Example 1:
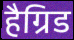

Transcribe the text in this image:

हैग्रिड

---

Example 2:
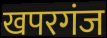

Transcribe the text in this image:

खपरगंज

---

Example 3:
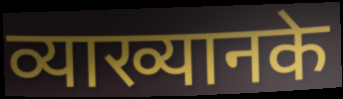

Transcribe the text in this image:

व्याख्यानके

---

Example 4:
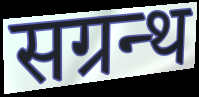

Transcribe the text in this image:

सग्रन्थ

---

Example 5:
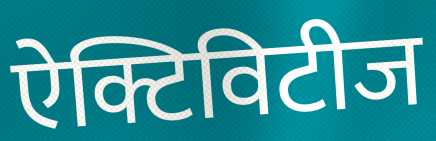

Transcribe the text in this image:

ऐक्टिविटीज